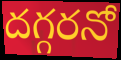
దగ్గరనో